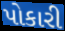
પોકારી